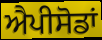
ਐਪੀਸੋਡਾਂ